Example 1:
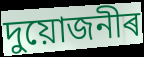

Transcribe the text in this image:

দুয়োজনীৰ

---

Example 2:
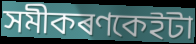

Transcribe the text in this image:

সমীকৰণকেইটা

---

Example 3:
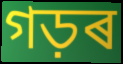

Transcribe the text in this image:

গড়ৰ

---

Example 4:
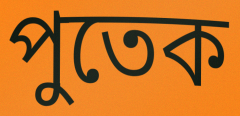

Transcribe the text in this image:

পুতেক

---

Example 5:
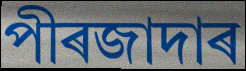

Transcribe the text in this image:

পীৰজাদাৰ